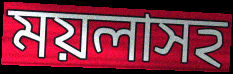
ময়লাসহ